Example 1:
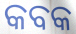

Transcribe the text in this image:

କବକ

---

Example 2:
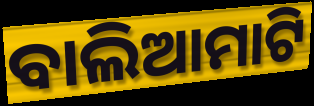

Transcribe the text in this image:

ବାଲିଆମାଟି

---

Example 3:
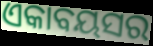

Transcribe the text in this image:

ଏକାବୟସର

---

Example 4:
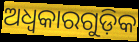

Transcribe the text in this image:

ଅଧ୍ବକାରଗୁଡ଼ିକ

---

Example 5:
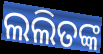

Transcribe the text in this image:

ଲଲିତଙ୍କ